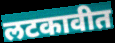
लटकावीत